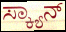
ಸ್ಕ್ಯಾನ್